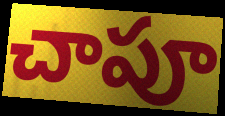
చాపూ